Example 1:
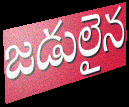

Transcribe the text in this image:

జడులైన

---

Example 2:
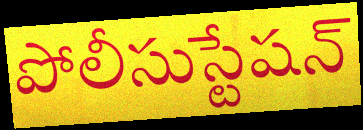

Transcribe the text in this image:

పోలీసుస్టేషన్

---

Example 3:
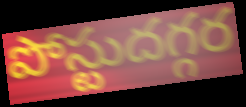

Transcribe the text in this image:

పోస్టుదగ్గర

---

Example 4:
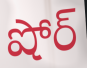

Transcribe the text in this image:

షోర్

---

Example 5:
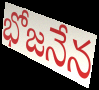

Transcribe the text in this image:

భోజనేన